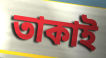
তাকাই